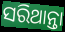
ସରିଥାନ୍ତା